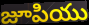
జూపియు